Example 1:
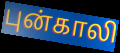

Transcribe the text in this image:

புன்காலி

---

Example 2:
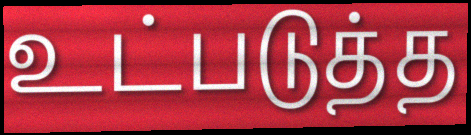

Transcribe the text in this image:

உட்படுத்த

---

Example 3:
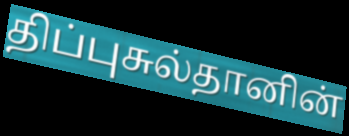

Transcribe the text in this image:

திப்புசுல்தானின்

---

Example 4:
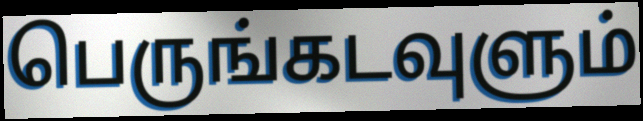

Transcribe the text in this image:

பெருங்கடவுளும்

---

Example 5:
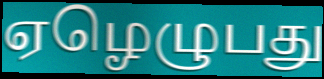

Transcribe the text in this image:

ஏழெழுபது